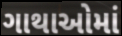
ગાથાઓમાં